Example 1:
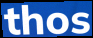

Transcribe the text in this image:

thos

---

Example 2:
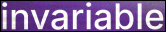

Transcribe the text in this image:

invariable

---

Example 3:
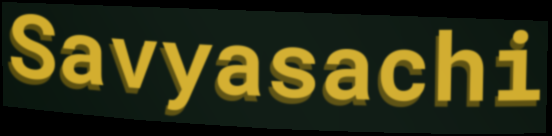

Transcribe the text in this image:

Savyasachi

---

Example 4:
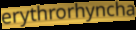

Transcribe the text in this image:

erythrorhyncha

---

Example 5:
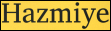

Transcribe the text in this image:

Hazmiye